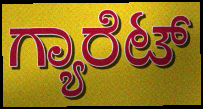
ಗ್ಯಾರೆಟ್